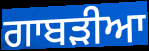
ਗਾਬੜੀਆ